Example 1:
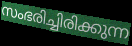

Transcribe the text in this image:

സംഭരിച്ചിരിക്കുന്ന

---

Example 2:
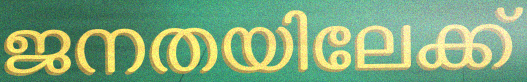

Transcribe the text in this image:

ജനതയിലേക്ക്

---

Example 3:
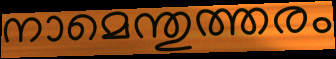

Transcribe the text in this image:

നാമെന്തുത്തരം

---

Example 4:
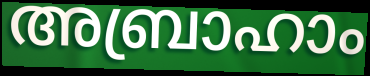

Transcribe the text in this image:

അബ്രാഹാം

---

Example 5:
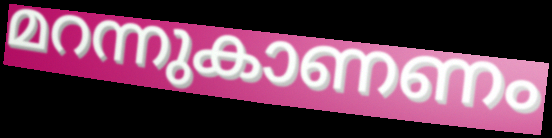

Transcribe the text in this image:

മറന്നുകാണണം